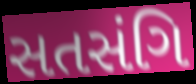
સતસંગિ